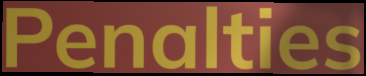
Penalties